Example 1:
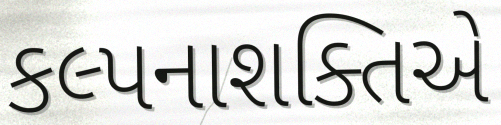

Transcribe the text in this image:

કલ્પનાશક્તિએ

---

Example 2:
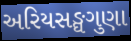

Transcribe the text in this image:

અરિયસઙ્ઘગુણા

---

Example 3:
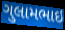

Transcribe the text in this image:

ગુલામભાઇ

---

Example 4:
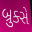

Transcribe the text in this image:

બ્રુક્સે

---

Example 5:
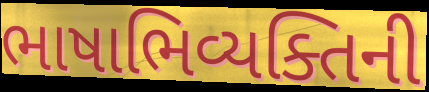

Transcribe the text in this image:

ભાષાભિવ્યક્તિની